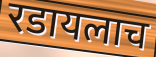
रडायलाच